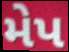
મેપ